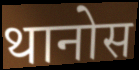
थानोस